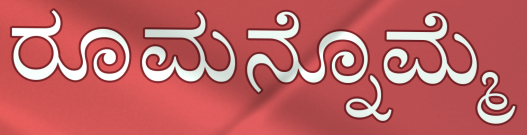
ರೂಮನ್ನೊಮ್ಮೆ